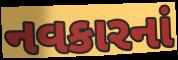
નવકારનાં